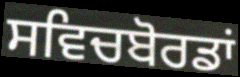
ਸਵਿਚਬੋਰਡਾਂ